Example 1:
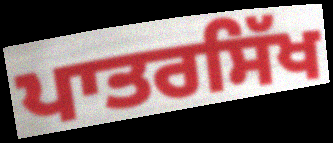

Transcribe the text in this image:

ਪਾਤਰਸਿੱਖ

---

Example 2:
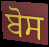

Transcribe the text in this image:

ਬੋਸ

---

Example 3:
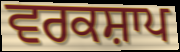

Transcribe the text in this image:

ਵਰਕਸ਼ਾਪ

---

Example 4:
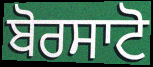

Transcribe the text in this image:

ਬੋਰਸਾਟੋ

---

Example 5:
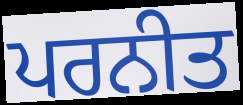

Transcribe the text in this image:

ਪਰਨੀਤ